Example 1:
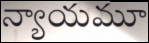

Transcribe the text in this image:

న్యాయమూ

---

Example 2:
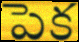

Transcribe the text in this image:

పెక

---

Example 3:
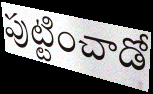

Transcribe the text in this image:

పుట్టించాడో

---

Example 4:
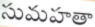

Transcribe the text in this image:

సుమహతా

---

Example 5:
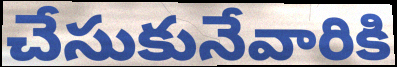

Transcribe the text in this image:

చేసుకునేవారికి